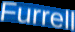
Furrell